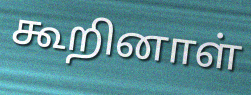
கூறினாள்